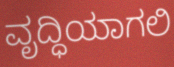
ವೃದ್ಧಿಯಾಗಲಿ